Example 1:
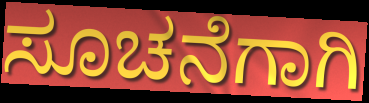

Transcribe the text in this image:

ಸೂಚನೆಗಾಗಿ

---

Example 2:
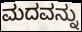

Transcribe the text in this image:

ಮದವನ್ನು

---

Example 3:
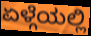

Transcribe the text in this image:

ಏಳ್ಗೆಯಲ್ಲಿ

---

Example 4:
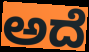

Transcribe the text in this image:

ಅದೆ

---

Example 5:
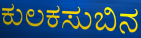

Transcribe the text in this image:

ಕುಲಕಸುಬಿನ